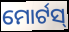
ମୋର୍ଟସ୍